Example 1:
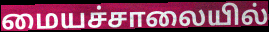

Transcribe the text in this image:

மையச்சாலையில்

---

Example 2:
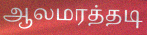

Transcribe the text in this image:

ஆலமரத்தடி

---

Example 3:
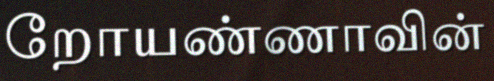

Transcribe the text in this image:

றோயண்ணாவின்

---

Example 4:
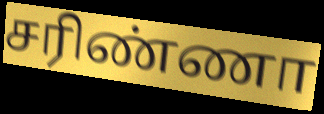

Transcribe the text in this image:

சரிண்ணா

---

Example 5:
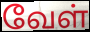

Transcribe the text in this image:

வேள்